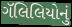
ગૅલિલિયોનું